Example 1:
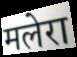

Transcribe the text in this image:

मलेरा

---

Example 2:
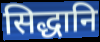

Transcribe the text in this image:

सिद्धानि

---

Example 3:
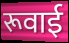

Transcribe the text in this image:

रूवाई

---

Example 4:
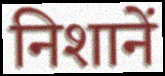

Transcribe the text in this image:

निशानें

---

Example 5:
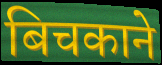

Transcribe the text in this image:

बिचकाने